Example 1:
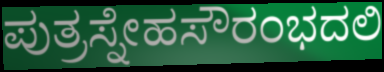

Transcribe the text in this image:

ಪುತ್ರಸ್ನೇಹಸೌರಂಭದಲಿ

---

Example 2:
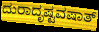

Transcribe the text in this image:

ದುರಾದೃಷ್ಟವಷಾತ್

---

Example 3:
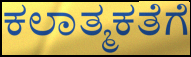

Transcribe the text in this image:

ಕಲಾತ್ಮಕತೆಗೆ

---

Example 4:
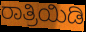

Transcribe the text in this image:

ರಾತ್ರಿಯಿಡಿ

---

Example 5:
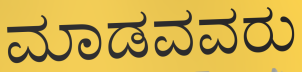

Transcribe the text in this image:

ಮಾಡವವರು